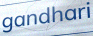
gandhari